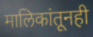
मालिकांतूनही